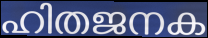
ഹിതജനക